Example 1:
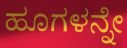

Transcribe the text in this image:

ಹೂಗಳನ್ನೇ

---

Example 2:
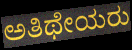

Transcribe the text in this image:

ಅತಿಥೇಯರು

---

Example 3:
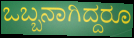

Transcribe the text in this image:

ಒಬ್ಬನಾಗಿದ್ದರೂ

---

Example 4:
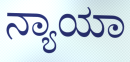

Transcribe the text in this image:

ನ್ಯಾಯಾ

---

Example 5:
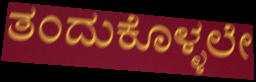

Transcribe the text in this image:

ತಂದುಕೊಳ್ಳಲೇ